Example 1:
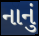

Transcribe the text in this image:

નાનું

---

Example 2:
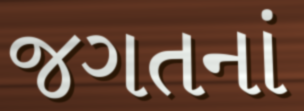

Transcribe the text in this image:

જગતનાં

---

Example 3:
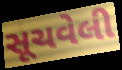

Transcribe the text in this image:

સૂચવેલી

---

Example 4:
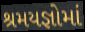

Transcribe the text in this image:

શ્રમયજ્ઞોમાં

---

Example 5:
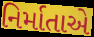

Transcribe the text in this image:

નિર્માતાએ